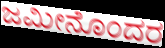
ಜಮೀನೊಂದರ